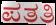
ಪತತಿ